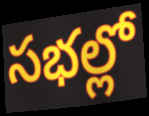
సభల్లో